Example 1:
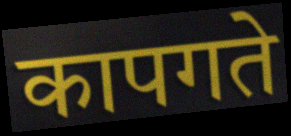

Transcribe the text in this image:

कापगते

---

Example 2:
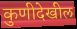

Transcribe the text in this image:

कुणीदेखील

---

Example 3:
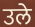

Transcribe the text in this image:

उले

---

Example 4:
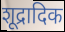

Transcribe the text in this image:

शूद्रादिक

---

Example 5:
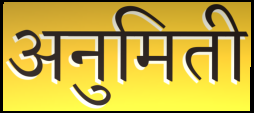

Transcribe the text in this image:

अनुमिती